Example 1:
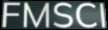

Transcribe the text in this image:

FMSCI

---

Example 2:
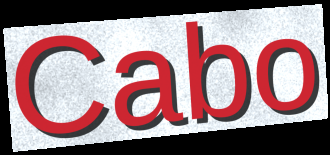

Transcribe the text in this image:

Cabo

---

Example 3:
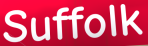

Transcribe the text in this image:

Suffolk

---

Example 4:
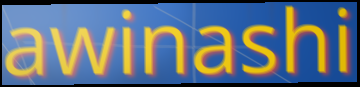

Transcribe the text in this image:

awinashi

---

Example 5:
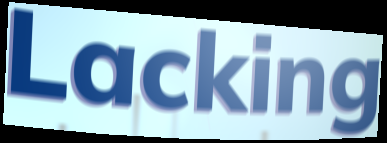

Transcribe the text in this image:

Lacking